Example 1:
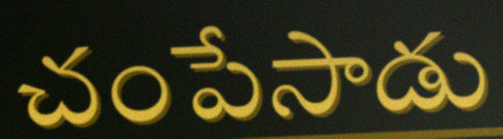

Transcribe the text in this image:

చంపేసాడు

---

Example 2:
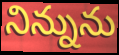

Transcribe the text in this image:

నిన్నును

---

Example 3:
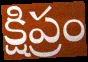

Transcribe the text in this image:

క్షిప్రం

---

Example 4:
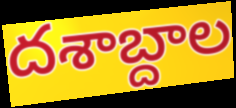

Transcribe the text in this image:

దశాబ్దాల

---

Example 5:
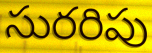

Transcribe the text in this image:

సురరిపు